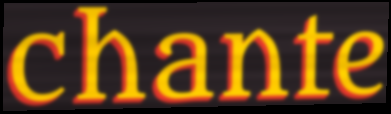
chante